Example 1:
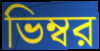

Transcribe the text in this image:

ভিম্বর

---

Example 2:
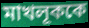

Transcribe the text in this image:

মাখলূককে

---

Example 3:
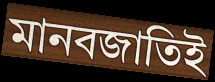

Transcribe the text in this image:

মানবজাতিই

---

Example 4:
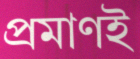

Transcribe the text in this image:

প্রমাণই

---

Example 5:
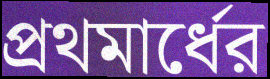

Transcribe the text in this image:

প্রথমার্ধের